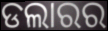
ଡଲାରର